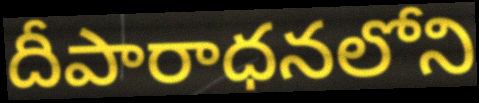
దీపారాధనలోని